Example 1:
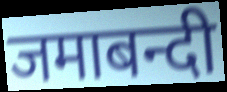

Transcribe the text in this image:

जमाबन्दी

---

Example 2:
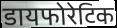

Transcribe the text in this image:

डायफोरेटिक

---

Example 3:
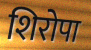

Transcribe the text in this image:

शिरोपा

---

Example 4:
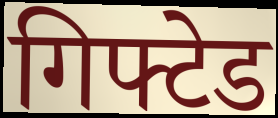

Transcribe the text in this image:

गिफ्टेड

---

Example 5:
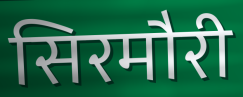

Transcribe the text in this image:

सिरमौरी